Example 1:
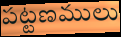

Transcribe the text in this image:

పట్టణములు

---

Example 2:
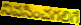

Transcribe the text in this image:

నివసించగలిగే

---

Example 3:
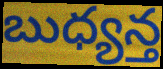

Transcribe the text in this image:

బుధ్యన్త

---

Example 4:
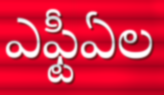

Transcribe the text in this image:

ఎఫ్టీఏల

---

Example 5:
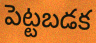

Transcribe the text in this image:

పెట్టబడక